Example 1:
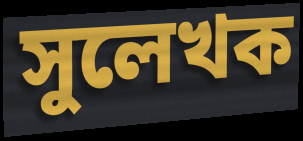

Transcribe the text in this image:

সুলেখক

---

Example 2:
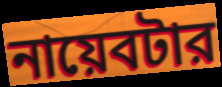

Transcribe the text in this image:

নায়েবটার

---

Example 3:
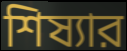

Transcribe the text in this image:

শিষ্যার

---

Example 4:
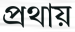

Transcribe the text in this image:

প্রথায়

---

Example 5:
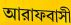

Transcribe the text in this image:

আরাফবাসী